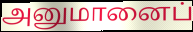
அனுமானைப்